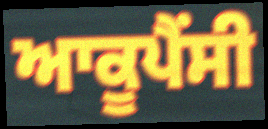
ਆਕੂਪੈਂਸੀ